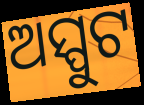
ଅସ୍ପୁଟ